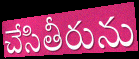
చేసితీరును